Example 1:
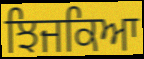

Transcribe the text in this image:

ਝਿਜਕਿਆ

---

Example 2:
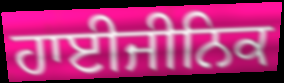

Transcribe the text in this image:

ਹਾਈਜੀਨਿਕ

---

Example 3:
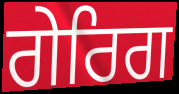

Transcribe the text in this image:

ਗੇਰਿਗ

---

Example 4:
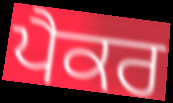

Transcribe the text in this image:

ਪੈਕਰ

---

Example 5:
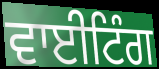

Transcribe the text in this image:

ਵਾਈਟਿੰਗ